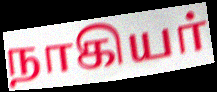
நாகியர்